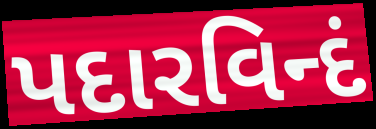
પદારવિન્દં